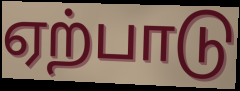
ஏற்பாடு